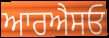
ਆਰਐਸਓ